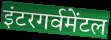
इंटरगर्वमेंटल